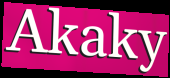
Akaky